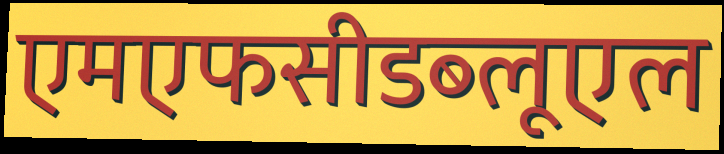
एमएफसीडब्‍लूएल